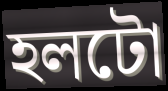
হলটো